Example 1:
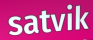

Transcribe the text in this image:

satvik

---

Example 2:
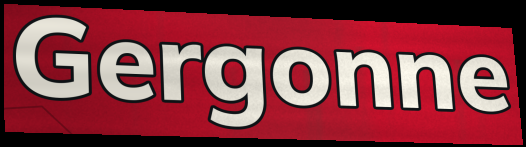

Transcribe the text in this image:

Gergonne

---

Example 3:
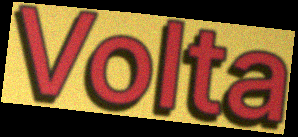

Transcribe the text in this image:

Volta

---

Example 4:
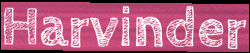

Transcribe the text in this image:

Harvinder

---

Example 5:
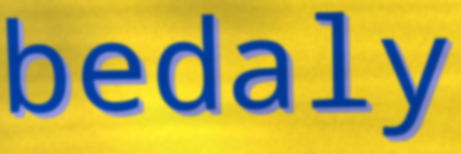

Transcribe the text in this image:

bedaly